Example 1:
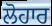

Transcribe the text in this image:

ਲੋਹਾਰ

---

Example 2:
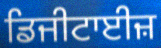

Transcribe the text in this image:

ਡਿਜੀਟਾਈਜ਼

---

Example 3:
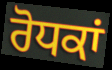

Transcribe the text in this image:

ਰੋਧਕਾਂ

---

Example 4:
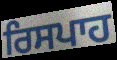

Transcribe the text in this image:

ਰਿਸਪਾਹ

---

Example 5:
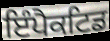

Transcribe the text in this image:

ਇੰਪੈਕਟਿਡ